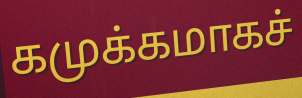
கமுக்கமாகச்